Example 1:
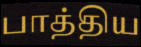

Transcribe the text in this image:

பாத்திய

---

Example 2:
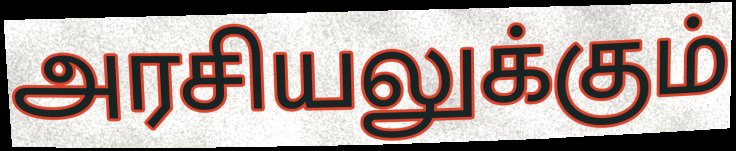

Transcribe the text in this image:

அரசியலுக்கும்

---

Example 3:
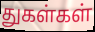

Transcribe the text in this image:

துகள்கள்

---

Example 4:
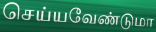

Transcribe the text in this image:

செய்யவேண்டுமா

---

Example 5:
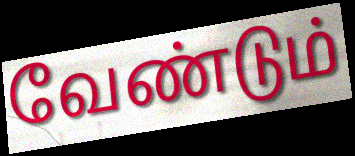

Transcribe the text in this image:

வேண்டும்